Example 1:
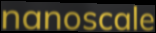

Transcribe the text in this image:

nanoscale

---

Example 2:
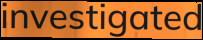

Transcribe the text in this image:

investigated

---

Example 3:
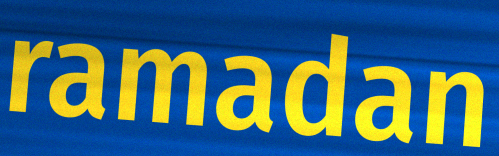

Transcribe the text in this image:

ramadan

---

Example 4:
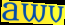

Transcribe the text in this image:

awu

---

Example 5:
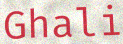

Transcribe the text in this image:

Ghali